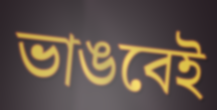
ভাঙবেই